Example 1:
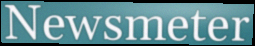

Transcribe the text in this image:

Newsmeter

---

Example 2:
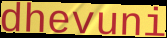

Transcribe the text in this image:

dhevuni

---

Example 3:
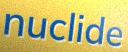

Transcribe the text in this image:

nuclide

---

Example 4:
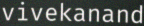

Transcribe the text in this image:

vivekanand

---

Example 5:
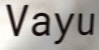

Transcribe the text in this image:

Vayu